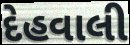
દેહવાલી